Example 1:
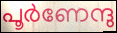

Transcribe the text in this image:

പൂർണേന്ദു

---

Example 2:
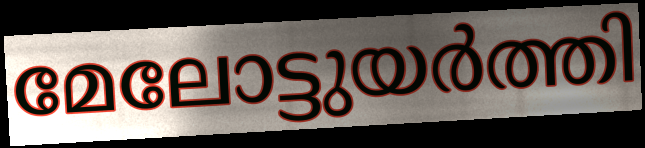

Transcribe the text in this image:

മേലോട്ടുയർത്തി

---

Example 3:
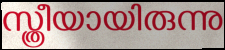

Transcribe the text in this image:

സ്ത്രീയായിരുന്നു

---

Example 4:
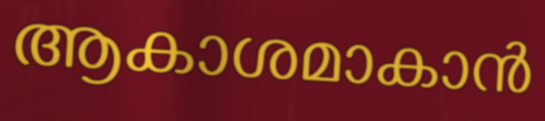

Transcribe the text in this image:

ആകാശമാകാൻ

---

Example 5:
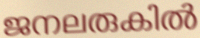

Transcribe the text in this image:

ജനലരുകിൽ